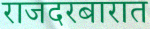
राजदरबारात